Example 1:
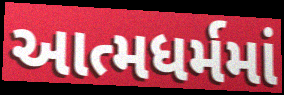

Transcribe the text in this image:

આત્મધર્મમાં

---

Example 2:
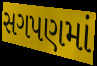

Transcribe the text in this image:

સગપણમાં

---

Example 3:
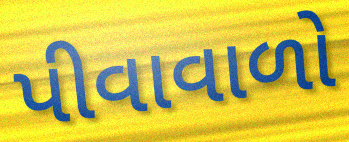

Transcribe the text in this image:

પીવાવાળો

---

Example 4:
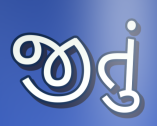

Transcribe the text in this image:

જીતું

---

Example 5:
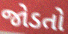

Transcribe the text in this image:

જોડતો